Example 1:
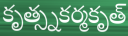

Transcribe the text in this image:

కృత్స్నకర్మకృత్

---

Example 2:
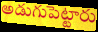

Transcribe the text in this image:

అడుగుపెట్టారు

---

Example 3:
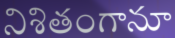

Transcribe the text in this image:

నిశితంగానూ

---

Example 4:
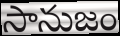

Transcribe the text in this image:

సానుజం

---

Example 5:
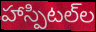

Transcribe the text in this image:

హాస్పిటల్‌ల